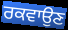
ਰਕਵਾਉਣ